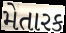
મેતારક